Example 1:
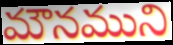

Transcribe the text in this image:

మౌనముని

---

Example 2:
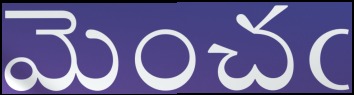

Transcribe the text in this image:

మెంచఁ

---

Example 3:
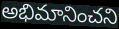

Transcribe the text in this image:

అభిమానించని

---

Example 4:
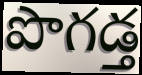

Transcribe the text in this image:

పొగడ్త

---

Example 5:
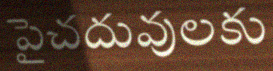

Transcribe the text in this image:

పైచదువులకు